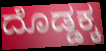
ದೊಡ್ಡಕ್ಕ